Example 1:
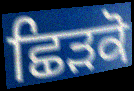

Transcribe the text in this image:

ਛਿੜਕੋ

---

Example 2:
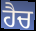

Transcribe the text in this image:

ਹੈਚ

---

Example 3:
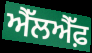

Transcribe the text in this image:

ਐੱਲਐੱਫ਼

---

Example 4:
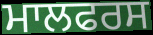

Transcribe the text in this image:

ਮਾਲਫਰਸ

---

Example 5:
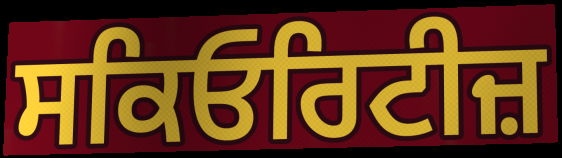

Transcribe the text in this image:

ਸਕਿਓਰਿਟੀਜ਼